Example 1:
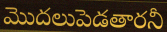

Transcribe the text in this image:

మొదలుపెడతారనీ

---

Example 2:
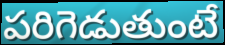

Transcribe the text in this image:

పరిగెడుతుంటే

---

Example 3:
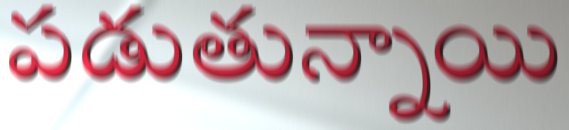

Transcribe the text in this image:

పడుతున్నాయి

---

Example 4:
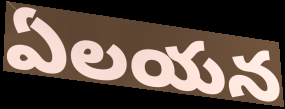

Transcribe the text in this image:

ఏలయన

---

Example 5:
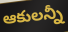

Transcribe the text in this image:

ఆకులన్నీ